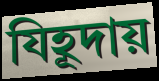
যিহূদায়